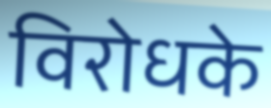
विरोधके